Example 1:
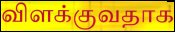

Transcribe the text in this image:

விளக்குவதாக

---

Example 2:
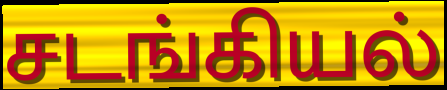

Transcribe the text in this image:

சடங்கியல்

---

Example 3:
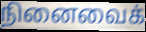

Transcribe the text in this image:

நினைவைக்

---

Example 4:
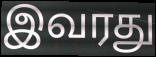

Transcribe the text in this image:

இவரது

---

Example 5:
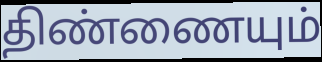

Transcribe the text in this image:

திண்ணையும்